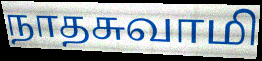
நாதசுவாமி